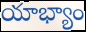
యాభ్యాం